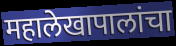
महालेखापालांचा